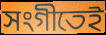
সংগীতেই